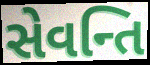
સેવન્તિ